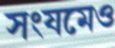
সংযমেও